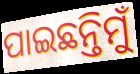
ପାଇଛନ୍ତିମୁଁ